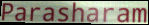
Parasharam